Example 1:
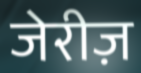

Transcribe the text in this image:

जेरीज़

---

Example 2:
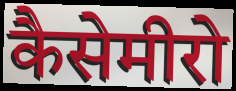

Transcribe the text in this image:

कैसेमीरो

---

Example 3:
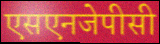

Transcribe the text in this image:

एसएनजेपीसी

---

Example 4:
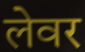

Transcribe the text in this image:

लेवर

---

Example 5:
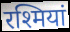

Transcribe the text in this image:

रश्मियां